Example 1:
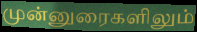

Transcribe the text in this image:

முன்னுரைகளிலும்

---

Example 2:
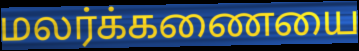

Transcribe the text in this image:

மலர்க்கணையை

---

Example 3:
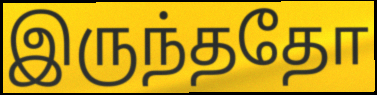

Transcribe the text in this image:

இருந்ததோ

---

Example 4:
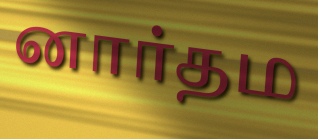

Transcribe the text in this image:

னார்தம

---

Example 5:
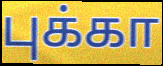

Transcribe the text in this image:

புக்கா